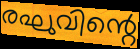
രഘുവിന്റെ